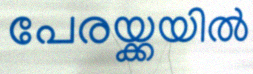
പേരയ്ക്കയിൽ